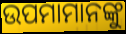
ଉପମାମାନଙ୍କୁ